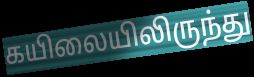
கயிலையிலிருந்து